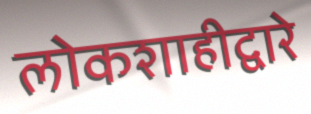
लोकशाहीद्वारे